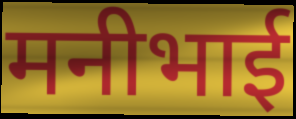
मनीभाई